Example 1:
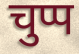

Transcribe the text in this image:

चुप्प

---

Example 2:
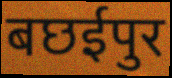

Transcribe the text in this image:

बछईपुर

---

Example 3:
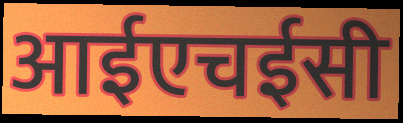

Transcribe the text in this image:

आईएचईसी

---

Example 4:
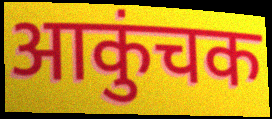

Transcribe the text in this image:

आकुंचक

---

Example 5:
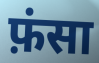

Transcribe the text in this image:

फ़ंसा